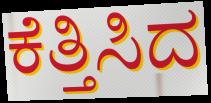
ಕೆತ್ತಿಸಿದ